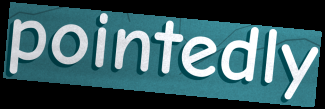
pointedly